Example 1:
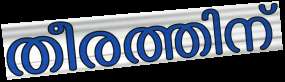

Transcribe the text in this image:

തീരത്തിന്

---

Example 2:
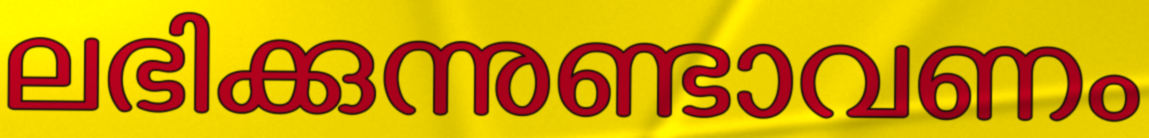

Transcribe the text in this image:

ലഭിക്കുന്നുണ്ടാവണം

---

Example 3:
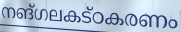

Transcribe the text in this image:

നങ്ഗലകട്ഠകരണം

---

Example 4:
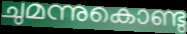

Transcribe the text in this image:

ചുമന്നുകൊണ്ടു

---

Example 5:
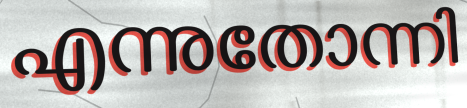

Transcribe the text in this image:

എന്നുതോന്നി